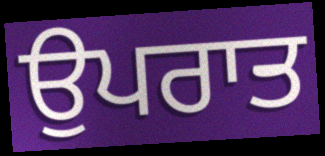
ਉਪਰਾਤ